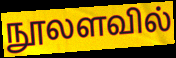
நூலளவில்